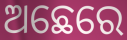
ଅଛେରେ